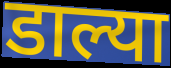
डाल्या